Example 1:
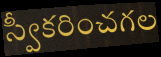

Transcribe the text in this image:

స్వీకరించగల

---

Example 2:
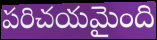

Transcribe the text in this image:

పరిచయమైంది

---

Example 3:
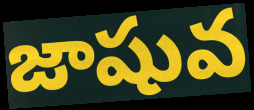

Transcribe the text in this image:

జాషువ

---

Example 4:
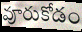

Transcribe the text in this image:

వూరుకోడం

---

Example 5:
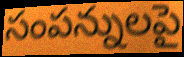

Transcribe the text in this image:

సంపన్నులపై